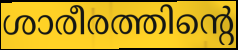
ശാരീരത്തിന്റെ